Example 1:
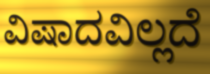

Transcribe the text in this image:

ವಿಷಾದವಿಲ್ಲದೆ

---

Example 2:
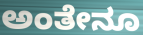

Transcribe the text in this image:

ಅಂತೇನೂ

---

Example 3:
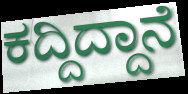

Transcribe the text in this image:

ಕದ್ದಿದ್ದಾನೆ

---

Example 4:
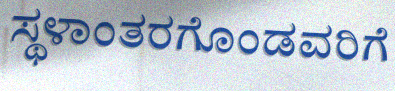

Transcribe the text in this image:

ಸ್ಥಳಾಂತರಗೊಂಡವರಿಗೆ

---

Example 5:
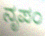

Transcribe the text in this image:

ನೃಪಂ